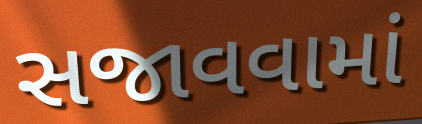
સજાવવામાં